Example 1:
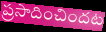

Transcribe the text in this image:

ప్రసాదించిందట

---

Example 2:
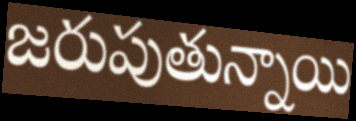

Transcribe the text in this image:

జరుపుతున్నాయి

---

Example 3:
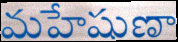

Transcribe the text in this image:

మహేషుణా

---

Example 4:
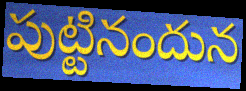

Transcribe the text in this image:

పుట్టినందున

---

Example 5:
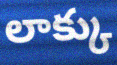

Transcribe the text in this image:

లాక్కు